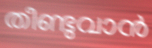
തീണ്ടുവാൻ